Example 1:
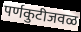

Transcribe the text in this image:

पर्णकुटीजवळ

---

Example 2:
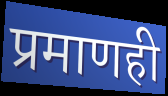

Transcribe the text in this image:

प्रमाणही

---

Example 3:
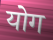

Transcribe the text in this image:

योग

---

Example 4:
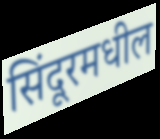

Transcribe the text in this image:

सिंदूरमधील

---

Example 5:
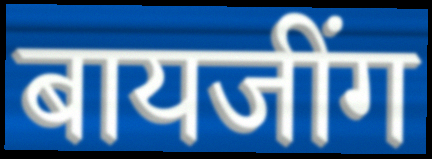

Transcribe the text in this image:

बायजींग